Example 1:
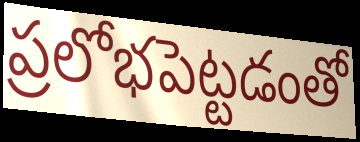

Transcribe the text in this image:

ప్రలోభపెట్టడంతో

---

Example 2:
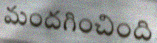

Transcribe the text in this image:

మందగించింది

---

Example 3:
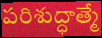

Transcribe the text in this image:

పరిశుద్ధాత్మే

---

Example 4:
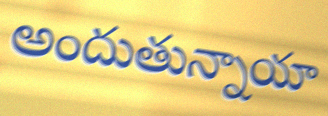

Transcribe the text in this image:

అందుతున్నాయా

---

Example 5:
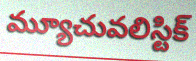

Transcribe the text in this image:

మ్యూచువలిస్టిక్